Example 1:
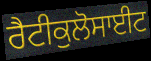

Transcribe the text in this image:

ਰੈਟੀਕੁਲੋਸਾਈਟ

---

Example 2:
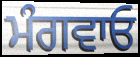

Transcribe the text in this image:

ਮੰਗਵਾਓ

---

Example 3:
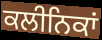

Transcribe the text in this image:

ਕਲੀਨਿਕਾਂ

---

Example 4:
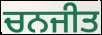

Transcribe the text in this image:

ਚਨਜੀਤ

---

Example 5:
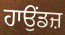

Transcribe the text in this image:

ਹਾਉਂਡਜ਼